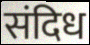
संदिध